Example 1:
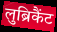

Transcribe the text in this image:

लुब्रिकैंट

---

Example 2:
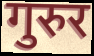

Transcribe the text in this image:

गुरुर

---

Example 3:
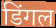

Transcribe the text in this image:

डिंगल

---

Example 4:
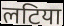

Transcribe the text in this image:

लटिया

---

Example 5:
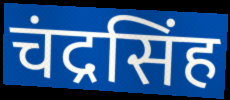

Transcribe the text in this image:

चंद्रसिंह